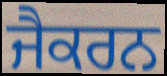
ਜੈਕਰਨ